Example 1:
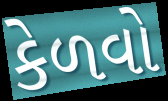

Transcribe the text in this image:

કેળવો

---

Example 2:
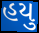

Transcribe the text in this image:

હયુ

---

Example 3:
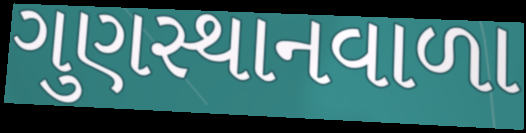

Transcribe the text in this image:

ગુણસ્થાનવાળા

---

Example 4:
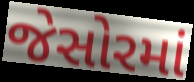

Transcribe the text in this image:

જેસોરમાં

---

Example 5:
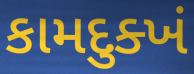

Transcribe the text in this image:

કામદુક્ખં